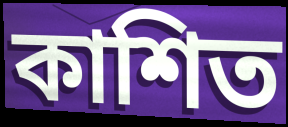
কাশিত